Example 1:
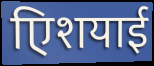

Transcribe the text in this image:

एिशयाई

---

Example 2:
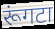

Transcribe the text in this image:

रूंगटा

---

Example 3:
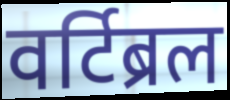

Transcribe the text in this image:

वर्टिब्रल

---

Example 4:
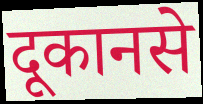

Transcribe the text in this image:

दूकानसे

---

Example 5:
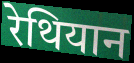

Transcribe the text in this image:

रेथियान